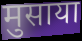
मुसाया